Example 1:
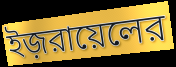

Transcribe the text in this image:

ইজ়রায়েলের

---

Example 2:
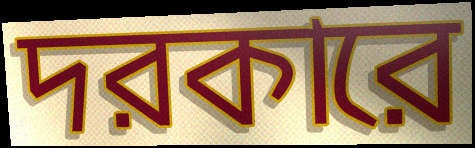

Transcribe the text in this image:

দরকারে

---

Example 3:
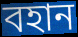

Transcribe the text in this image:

বহান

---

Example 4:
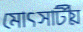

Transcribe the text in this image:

মোৎসার্টীয়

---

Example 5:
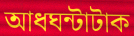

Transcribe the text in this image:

আধঘন্টাটাক